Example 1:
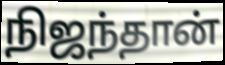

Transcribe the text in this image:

நிஜந்தான்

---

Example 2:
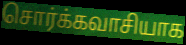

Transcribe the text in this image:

சொர்க்கவாசியாக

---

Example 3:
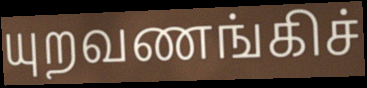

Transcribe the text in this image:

யுறவணங்கிச்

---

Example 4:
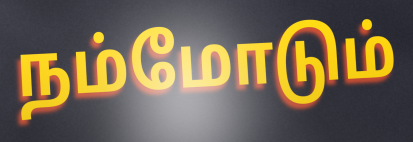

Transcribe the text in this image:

நம்மோடும்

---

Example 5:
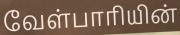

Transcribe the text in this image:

வேள்பாரியின்